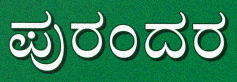
ಪುರಂದರ